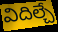
విదిల్చే